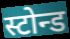
स्टोन्ड